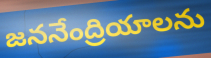
జననేంద్రియాలను